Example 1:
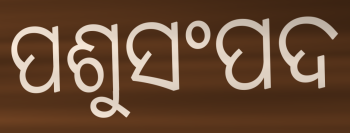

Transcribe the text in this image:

ପଶୁସଂପଦ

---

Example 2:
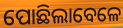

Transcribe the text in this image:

ପୋଛିଲାବେଳେ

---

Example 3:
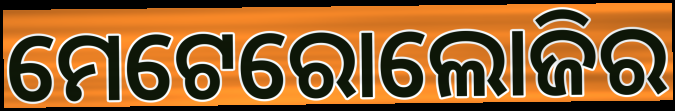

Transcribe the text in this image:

ମେଟେରୋଲୋଜିର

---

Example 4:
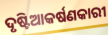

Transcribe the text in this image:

ଦୃଷ୍ଟିଆକର୍ଷଣକାରୀ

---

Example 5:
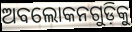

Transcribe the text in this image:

ଅବଲୋକନଗୁଡ଼ିକୁ